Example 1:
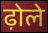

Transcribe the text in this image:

ढ़ोले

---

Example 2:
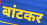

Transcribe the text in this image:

बांटकर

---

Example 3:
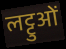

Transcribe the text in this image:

लट्टुओं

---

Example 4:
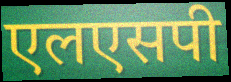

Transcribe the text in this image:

एलएसपी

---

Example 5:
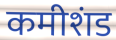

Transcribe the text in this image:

कमीशंड